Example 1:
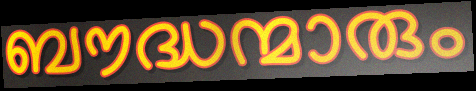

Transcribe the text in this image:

ബൗദ്ധന്മാരും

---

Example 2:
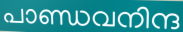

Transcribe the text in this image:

പാണ്ഡവനിന്ദ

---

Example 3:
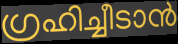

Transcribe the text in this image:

ഗ്രഹിച്ചീടാൻ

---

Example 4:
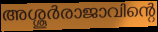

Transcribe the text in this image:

അശ്ശൂർരാജാവിന്റെ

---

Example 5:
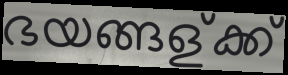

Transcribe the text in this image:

ഭയങ്ങള്ക്ക്